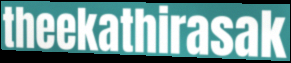
theekathirasak